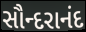
સૌન્દરાનંદ